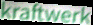
kraftwerk